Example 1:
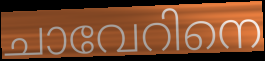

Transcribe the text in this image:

ചാവേറിനെ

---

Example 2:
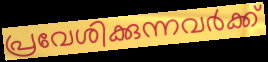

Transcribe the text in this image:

പ്രവേശിക്കുന്നവർക്ക്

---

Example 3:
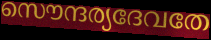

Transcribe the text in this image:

സൌന്ദര്യദേവതേ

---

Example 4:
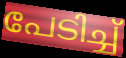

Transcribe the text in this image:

പേടിച്ച്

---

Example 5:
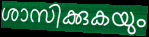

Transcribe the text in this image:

ശാസിക്കുകയും